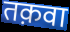
तक़वा